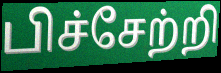
பிச்சேற்றி